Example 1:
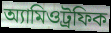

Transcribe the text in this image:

অ্যামিওট্রফিক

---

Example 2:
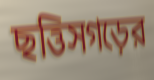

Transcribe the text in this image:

ছত্তিসগড়ের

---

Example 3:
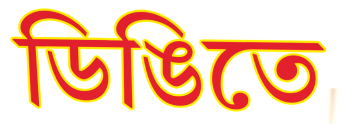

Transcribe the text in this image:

ডিঙিতে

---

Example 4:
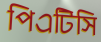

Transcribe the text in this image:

পিএটিসি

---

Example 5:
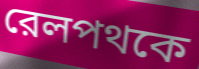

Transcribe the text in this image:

রেলপথকে